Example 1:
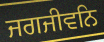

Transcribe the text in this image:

ਜਗਜੀਵਨਿ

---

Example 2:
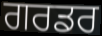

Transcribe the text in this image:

ਗਰਡਰ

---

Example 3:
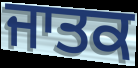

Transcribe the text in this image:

ਜਾਤਕ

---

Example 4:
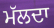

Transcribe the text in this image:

ਮੱਲਦਾ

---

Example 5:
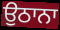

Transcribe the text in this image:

ਉਠਾਨਾ